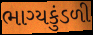
ભાગ્યકુંડળી